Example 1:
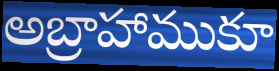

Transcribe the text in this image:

అబ్రాహాముకూ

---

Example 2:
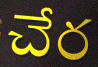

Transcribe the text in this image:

చేర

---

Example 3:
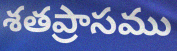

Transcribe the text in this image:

శతప్రాసము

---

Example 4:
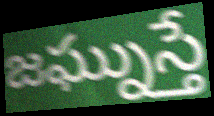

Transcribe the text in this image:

జఘ్నుస్తే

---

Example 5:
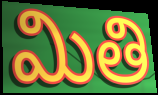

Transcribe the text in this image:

మితి